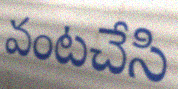
వంటచేసి